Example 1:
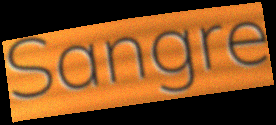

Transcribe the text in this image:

Sangre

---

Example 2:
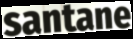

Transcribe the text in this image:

santane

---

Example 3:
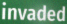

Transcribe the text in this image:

invaded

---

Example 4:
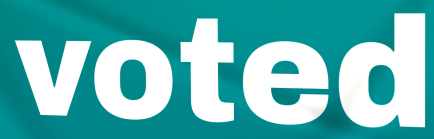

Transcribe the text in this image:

voted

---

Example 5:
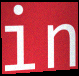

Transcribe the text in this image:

in